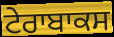
ਟੇਰਾਬਾਕਸ